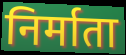
निर्माता